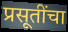
प्रसूतींचा